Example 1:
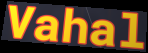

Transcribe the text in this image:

Vahal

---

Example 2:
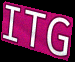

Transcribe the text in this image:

ITG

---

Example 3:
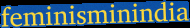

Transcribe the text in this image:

feminisminindia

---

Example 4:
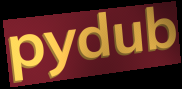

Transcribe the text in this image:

pydub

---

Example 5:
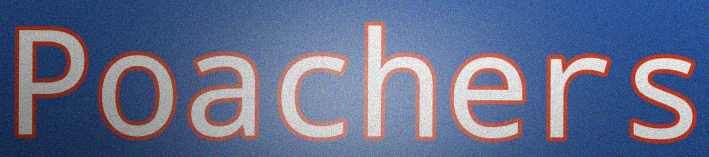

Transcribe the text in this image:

Poachers